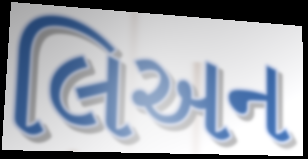
લિઅન